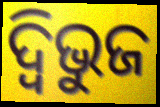
ଦ୍ଵିଭୁଜ